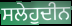
ਸਲੇਹੁਦੀਨ